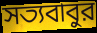
সত্যবাবুর